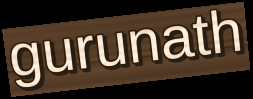
gurunath